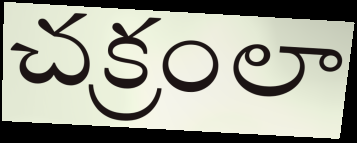
చక్రంలా